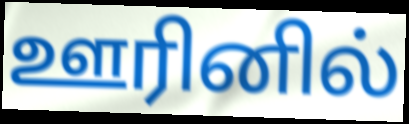
ஊரினில்